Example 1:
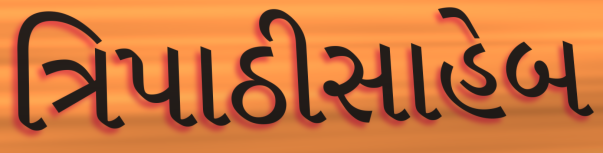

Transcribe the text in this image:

ત્રિપાઠીસાહેબ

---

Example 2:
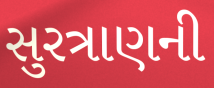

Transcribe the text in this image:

સુરત્રાણની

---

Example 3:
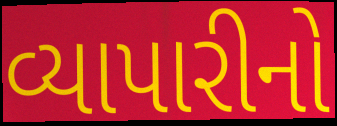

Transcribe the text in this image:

વ્યાપારીનો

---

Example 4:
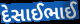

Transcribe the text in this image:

દેસાઈભાઈ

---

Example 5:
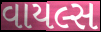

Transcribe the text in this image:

વાયલ્સ